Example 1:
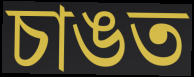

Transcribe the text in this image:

চাঙত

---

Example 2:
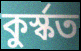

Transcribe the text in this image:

কুৰ্স্কত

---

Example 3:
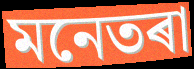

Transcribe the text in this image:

মনেতৰা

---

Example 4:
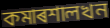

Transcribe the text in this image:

কমাৰশালখন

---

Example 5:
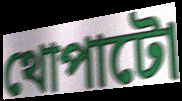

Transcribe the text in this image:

থোপাটো